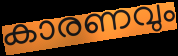
കാരണവും